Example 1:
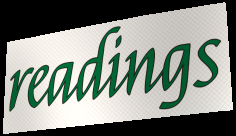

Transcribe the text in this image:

readings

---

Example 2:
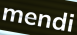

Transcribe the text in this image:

mendi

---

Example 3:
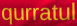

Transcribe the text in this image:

qurratul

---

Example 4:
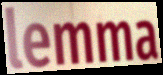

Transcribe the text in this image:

lemma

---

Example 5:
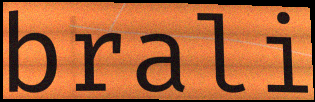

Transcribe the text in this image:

brali